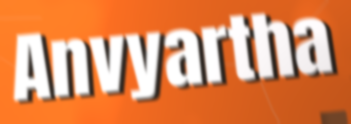
Anvyartha